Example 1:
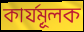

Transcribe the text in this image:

কার্যমূলক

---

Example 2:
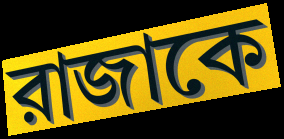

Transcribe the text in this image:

রাজাকে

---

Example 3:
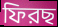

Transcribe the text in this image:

ফিরছ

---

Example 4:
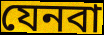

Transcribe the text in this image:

যেনবা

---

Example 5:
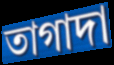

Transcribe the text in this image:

তাগাদা